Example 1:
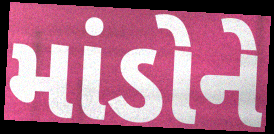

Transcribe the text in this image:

માંડોને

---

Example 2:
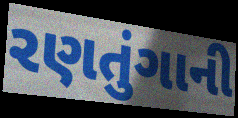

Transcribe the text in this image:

રણતુંગાની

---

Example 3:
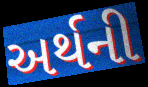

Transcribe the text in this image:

અર્થની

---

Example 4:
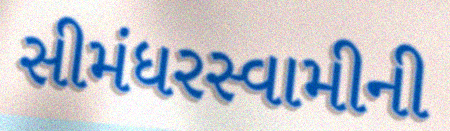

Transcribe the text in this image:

સીમંધરસ્વામીની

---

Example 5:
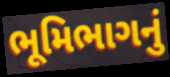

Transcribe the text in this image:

ભૂમિભાગનું